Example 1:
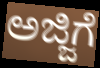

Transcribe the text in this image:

ಅಜ್ಜಿಗೆ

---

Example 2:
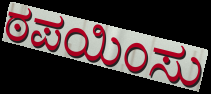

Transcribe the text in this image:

ಠಪಯಿಂಸು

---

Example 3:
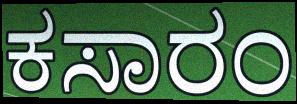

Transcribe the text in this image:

ಕಸಾರಂ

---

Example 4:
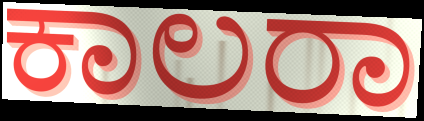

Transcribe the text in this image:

ಕಾಲರಾ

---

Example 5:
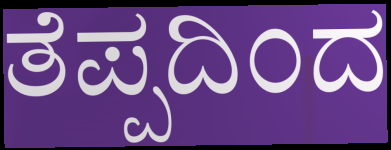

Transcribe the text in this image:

ತೆಪ್ಪದಿಂದ